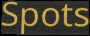
Spots